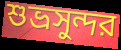
শুভ্রসুন্দর